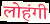
लोहंगी